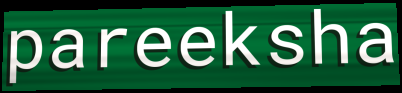
pareeksha